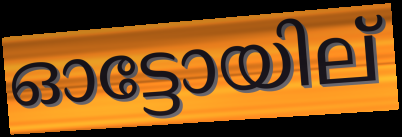
ഓട്ടോയില്